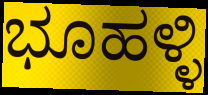
ಭೂಹಳ್ಳಿ